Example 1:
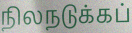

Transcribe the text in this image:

நிலநடுக்கப்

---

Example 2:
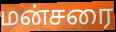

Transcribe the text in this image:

மன்சரை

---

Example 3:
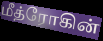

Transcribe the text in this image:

மீத்ரோகின்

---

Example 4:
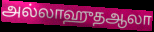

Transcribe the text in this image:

அல்லாஹுதஆலா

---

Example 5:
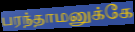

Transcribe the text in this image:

பரந்தாமனுக்கே